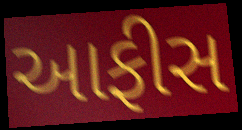
આફીસ